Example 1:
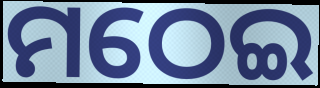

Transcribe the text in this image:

ମଠେଇ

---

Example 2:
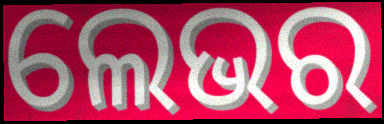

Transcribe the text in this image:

ଲେଭର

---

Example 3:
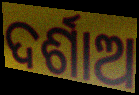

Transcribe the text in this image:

ଦର୍ଶାଅ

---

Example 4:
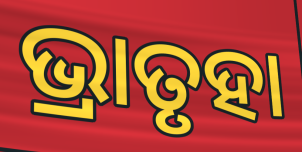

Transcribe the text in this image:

ଭ୍ରାତୃହା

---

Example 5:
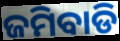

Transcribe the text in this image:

ଜମିବାଡି